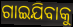
ଗାଇଯିବାକୁ